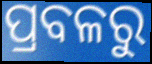
ପ୍ରବଳରୁ